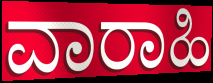
ವಾರಾಹಿ